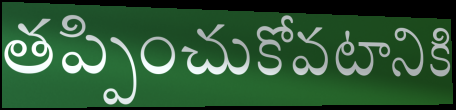
తప్పించుకోవటానికి